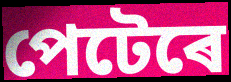
পেটেৰে